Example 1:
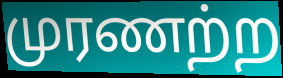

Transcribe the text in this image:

முரணற்ற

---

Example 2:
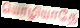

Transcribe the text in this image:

யொழியாதே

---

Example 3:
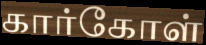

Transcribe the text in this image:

கார்கோள்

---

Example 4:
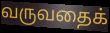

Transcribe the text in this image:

வருவதைக்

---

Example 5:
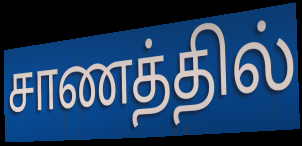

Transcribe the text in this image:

சாணத்தில்